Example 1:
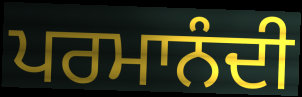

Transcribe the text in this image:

ਪਰਮਾਨੰਦੀ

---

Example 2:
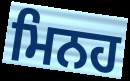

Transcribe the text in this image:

ਮਿਨਹ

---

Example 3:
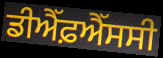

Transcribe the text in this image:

ਡੀਐੱਫ਼ਐੱਸਸੀ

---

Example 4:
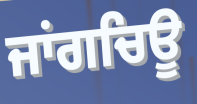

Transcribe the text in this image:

ਜਾਂਗਚਿਊ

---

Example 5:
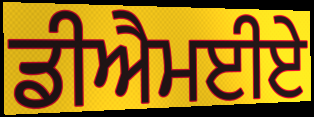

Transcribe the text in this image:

ਡੀਐਮਈਏ